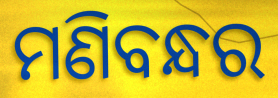
ମଣିବନ୍ଧର